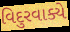
વિદુરવાક્યે